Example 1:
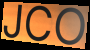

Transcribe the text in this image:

JCO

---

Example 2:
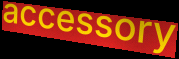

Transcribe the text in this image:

accessory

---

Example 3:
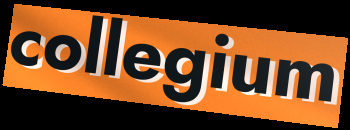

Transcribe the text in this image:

collegium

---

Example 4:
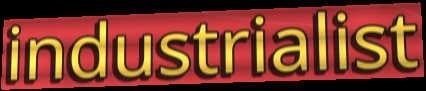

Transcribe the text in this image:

industrialist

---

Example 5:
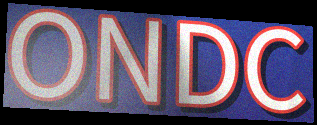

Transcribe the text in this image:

ONDC